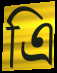
এি